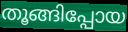
തൂങ്ങിപ്പോയ